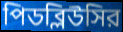
পিডব্লিউসির